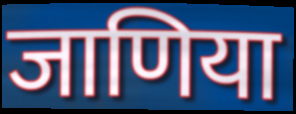
जाणिया